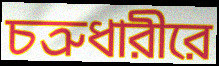
চত্রুধারীরে